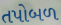
તપોબળ